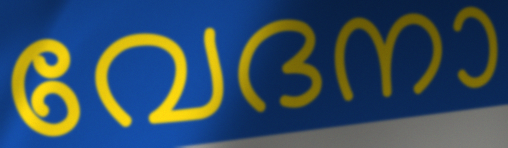
വേദനാ